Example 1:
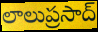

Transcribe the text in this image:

లాలుప్రసాద్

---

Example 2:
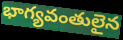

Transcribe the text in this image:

భాగ్యవంతులైన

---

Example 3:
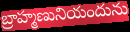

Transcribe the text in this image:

బ్రాహ్మణునియందును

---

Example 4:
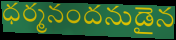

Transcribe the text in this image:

ధర్మనందనుడైన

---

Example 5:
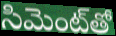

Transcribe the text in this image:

సిమెంట్‌తో